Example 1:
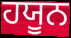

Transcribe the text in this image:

ਹਯੂਨ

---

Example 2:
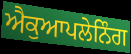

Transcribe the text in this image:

ਐਕੁਆਪਲੇਨਿੰਗ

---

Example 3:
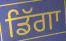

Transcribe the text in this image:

ਡਿੱਗਾ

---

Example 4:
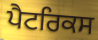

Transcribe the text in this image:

ਪੈਟਰਿਕਸ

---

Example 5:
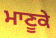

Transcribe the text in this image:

ਮਾਣੂਕੇ